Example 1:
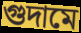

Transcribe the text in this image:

গুদামে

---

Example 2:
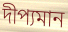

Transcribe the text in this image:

দীপ্যমান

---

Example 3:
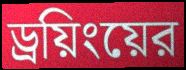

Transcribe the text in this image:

ড্রয়িংয়ের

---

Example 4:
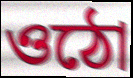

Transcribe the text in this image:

ওঠো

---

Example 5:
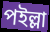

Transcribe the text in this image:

পইল্লা